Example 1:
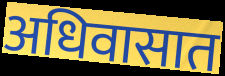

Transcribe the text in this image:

अधिवासात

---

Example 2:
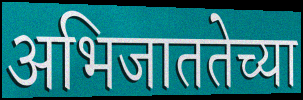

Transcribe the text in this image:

अभिजाततेच्या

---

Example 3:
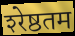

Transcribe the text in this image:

श्रेष्ठतम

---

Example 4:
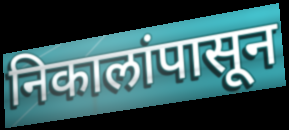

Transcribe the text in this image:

निकालांपासून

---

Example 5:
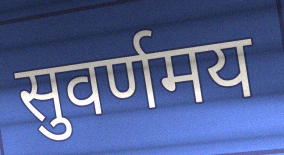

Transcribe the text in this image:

सुवर्णमय